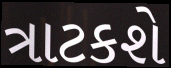
ત્રાટકશે